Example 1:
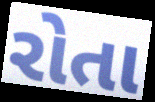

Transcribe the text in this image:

રોતા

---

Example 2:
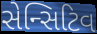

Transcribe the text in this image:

સેન્સિટિવ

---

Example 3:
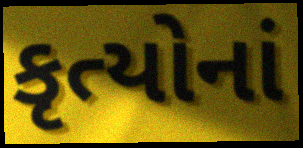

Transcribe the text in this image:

કૃત્યોનાં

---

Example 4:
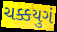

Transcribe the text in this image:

ચક્કયુગં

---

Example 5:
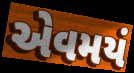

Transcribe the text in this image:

એવમયં